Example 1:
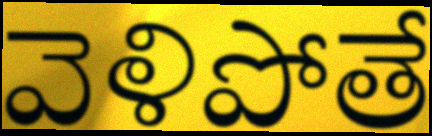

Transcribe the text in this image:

వెళిపోతే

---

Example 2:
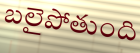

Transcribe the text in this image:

బలైపోతుంది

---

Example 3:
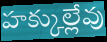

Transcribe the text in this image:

హక్కుల్లేవు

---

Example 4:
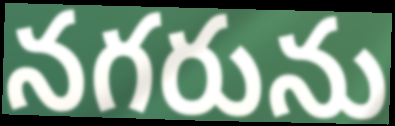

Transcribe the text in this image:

నగరును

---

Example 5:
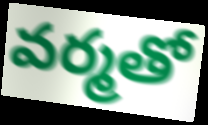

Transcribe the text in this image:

వర్మతో